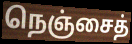
நெஞ்சைத்